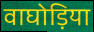
वाघोड़िया